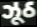
ઝૂઠ